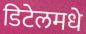
डिटेलमधे